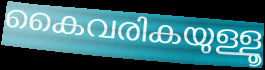
കൈവരികയുള്ളൂ